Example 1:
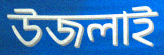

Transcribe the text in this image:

উজলাই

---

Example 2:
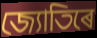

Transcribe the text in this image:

জ্যোতিৰে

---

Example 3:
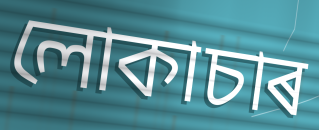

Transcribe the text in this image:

লোকাচাৰ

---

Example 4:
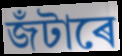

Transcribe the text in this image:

জঁটাৰে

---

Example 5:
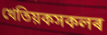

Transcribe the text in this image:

খেতিয়কসকলৰ